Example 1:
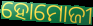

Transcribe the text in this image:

ହୋମୋଜୀ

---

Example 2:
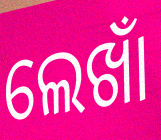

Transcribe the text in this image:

ଲେଖାଁ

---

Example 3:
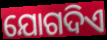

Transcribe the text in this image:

ଯୋଗଦିଏ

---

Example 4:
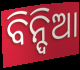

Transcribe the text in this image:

ବିନ୍ଦିଆ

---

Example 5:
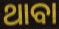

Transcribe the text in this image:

ଥାବା